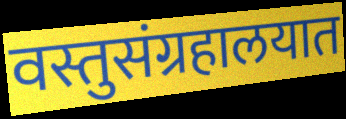
वस्तुसंग्रहालयात